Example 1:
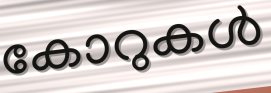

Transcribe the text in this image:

കോറുകൾ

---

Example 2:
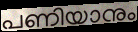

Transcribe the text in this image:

പണിയാനും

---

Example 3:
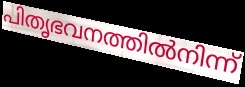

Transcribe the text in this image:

പിതൃഭവനത്തിൽനിന്ന്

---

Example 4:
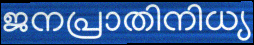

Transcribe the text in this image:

ജനപ്രാതിനിധ്യ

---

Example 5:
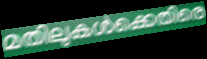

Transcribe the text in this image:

മതിലുകൾക്കെതിരെ